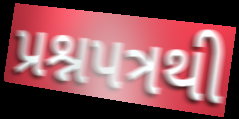
પ્રશ્નપત્રથી